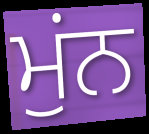
ਮੁਂਨ